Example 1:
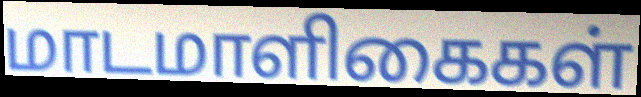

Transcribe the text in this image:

மாடமாளிகைகள்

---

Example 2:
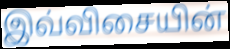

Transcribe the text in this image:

இவ்விசையின்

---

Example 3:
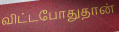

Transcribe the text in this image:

விட்டபோதுதான்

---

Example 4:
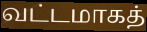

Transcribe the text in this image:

வட்டமாகத்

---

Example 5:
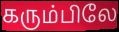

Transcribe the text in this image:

கரும்பிலே